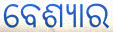
ବେଶ୍ୟାର